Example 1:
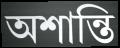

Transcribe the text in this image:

অশান্তি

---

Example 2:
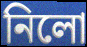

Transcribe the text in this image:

নিলো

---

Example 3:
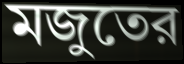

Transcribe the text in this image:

মজুতের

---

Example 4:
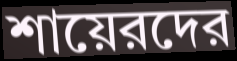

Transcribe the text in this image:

শায়েরদের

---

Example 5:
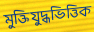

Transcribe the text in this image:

মুক্তিযুদ্ধভিত্তিক